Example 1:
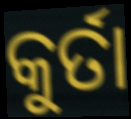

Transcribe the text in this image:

କୁର୍ତା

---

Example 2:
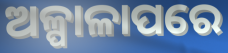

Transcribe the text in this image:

ଅଳ୍ପାଳାପରେ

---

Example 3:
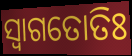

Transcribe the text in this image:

ସ୍ଵାଗତୋତିଃ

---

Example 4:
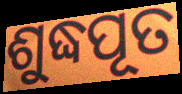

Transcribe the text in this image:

ଶୁଦ୍ଧପୂତ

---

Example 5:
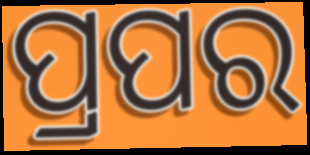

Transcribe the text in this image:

ପ୍ରପର